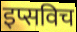
इप्सविच